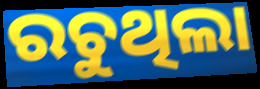
ରଚୁଥିଲା